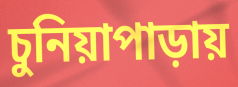
চুনিয়াপাড়ায়